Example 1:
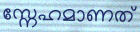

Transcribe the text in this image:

സ്നേഹമാണത്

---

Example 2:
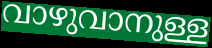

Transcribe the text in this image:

വാഴുവാനുള്ള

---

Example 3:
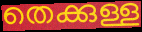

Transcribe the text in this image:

തെക്കുള്ള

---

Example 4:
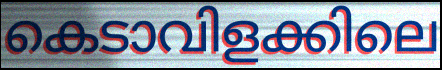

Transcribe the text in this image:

കെടാവിളക്കിലെ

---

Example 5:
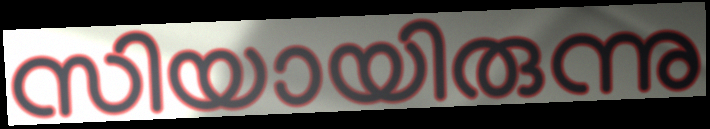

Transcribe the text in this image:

സിയായിരുന്നു